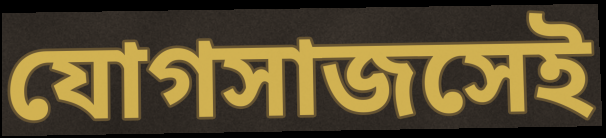
যোগসাজসেই